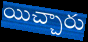
యిచ్చారు